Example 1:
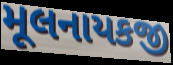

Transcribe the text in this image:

મૂલનાયકજી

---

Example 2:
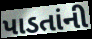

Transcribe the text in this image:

પાડતાંની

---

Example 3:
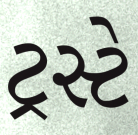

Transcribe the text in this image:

ટ્રસ્ટે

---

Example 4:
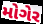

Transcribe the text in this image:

મોગેર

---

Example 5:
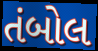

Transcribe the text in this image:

તંબોલ